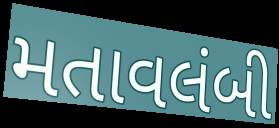
મતાવલંબી